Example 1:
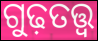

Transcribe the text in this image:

ଗୁଢ଼ତତ୍ତ୍ୱ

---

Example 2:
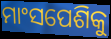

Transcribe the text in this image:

ମାଂସପେଶିକୁ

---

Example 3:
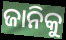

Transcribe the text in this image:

ଜାନିକୁ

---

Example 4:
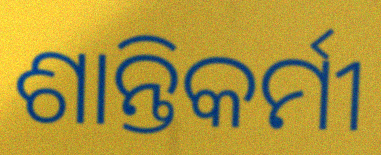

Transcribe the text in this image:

ଶାନ୍ତିକର୍ମୀ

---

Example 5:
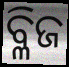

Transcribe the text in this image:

ବ୍ଳିଜ